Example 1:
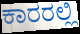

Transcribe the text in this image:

ಕಾರರಲ್ಲಿ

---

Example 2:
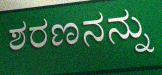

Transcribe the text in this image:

ಶರಣನನ್ನು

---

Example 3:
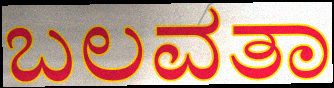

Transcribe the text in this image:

ಬಲವತಾ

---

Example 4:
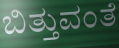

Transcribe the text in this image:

ಬಿತ್ತುವಂತೆ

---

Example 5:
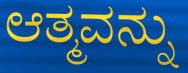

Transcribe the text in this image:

ಆತ್ಮವನ್ನು